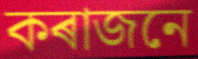
কৰাজনে